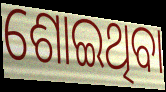
ଶୋଇଥିବା